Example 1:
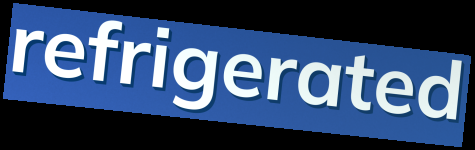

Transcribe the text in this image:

refrigerated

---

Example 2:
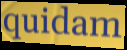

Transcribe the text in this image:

quidam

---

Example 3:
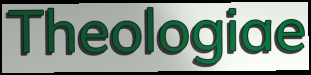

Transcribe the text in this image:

Theologiae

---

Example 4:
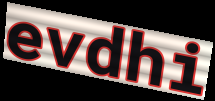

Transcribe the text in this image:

evdhi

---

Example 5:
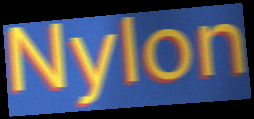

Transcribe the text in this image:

Nylon